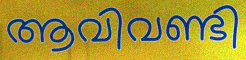
ആവിവണ്ടി